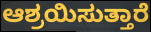
ಆಶ್ರಯಿಸುತ್ತಾರೆ